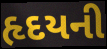
હૃદયની